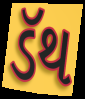
ડૅથ